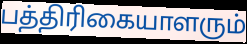
பத்திரிகையாளரும்